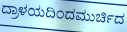
ದ್ರಾಳಯದಿಂದಮುರ್ಚಿದ